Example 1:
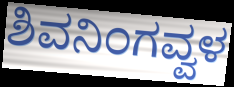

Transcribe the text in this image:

ಶಿವನಿಂಗವ್ವಳ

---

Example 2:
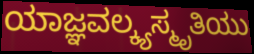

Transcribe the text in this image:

ಯಾಜ್ಞವಲ್ಕ್ಯಸ್ಮೃತಿಯು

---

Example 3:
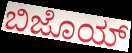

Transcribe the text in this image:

ಬಿಜೊಯ್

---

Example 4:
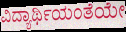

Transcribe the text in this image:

ವಿದ್ಯಾರ್ಥಿಯಂತೆಯೇ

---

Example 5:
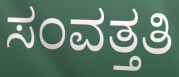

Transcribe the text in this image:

ಸಂವತ್ತತಿ